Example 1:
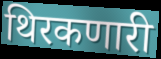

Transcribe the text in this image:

थिरकणारी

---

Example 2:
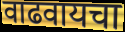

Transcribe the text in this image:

वाढवायचा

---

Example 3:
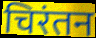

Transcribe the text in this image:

चिरंतन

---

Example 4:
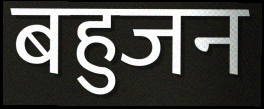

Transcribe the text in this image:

बहुजन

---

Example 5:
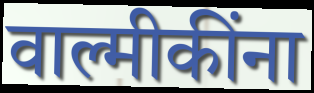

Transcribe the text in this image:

वाल्मीकींना